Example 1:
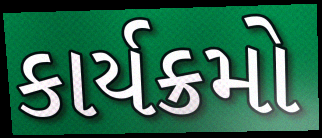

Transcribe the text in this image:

કાર્યક્રમો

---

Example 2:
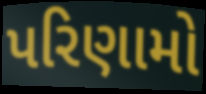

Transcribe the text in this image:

પરિણામો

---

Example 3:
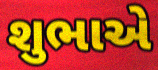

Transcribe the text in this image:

શુભાએ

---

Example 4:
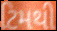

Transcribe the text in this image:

ટિમથી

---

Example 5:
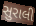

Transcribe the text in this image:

સુરાલી